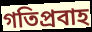
গতিপ্রবাহ